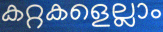
കറ്റകളെല്ലാം